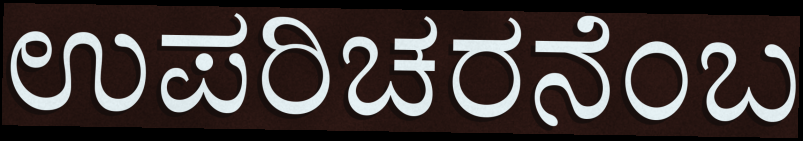
ಉಪರಿಚರನೆಂಬ